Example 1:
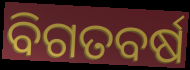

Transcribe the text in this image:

ବିଗତବର୍ଷ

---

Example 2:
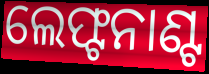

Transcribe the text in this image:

ଲେଫ୍ଟନାଣ୍ଟ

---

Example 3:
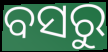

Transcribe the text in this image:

ବସରୁ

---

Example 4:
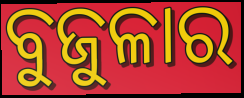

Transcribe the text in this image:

ବୁଜୁଳାର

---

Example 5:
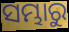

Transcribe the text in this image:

ସମ୍ଭାରୁ